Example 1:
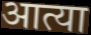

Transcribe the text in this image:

आत्या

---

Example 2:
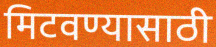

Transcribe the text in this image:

मिटवण्यासाठी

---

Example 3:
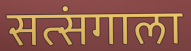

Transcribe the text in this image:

सत्संगाला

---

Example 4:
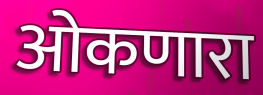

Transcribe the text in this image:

ओकणारा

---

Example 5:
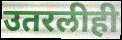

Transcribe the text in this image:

उतरलीही